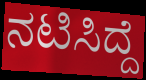
ನಟಿಸಿದ್ದೆ